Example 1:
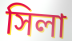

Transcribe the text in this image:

সিলা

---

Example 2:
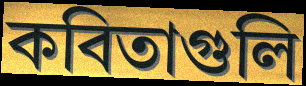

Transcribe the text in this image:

কবিতাগুলি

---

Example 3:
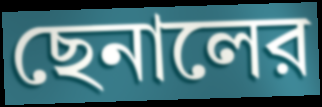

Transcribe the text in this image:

ছেনালের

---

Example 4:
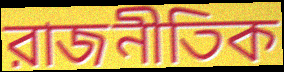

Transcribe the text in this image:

রাজনীতিক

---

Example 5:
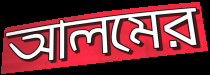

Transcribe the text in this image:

আলমের